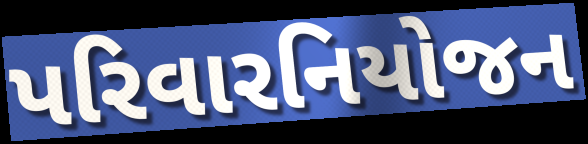
પરિવારનિયોજન